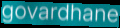
govardhane